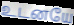
உடனயே